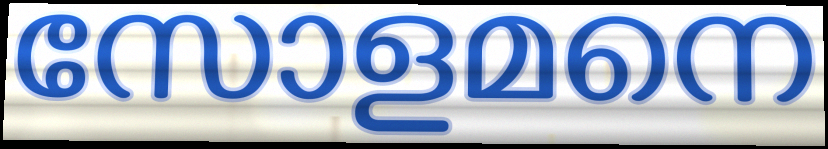
സോളമനെ